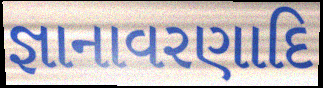
જ્ઞાનાવરણાદિ